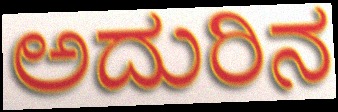
ಅದುರಿನ